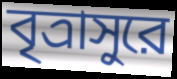
বৃত্রাসুরে